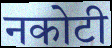
नकोटी